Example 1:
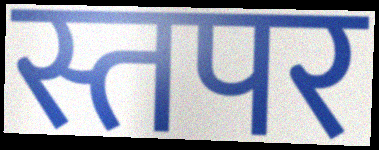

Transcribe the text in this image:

स्तपर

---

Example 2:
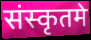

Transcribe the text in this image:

संस्कृतमे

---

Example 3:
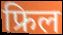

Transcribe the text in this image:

फ्रिल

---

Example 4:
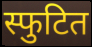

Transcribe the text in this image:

स्फुटित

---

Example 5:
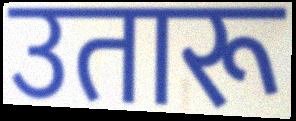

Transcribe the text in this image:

उतारू